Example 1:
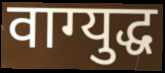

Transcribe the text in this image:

वाग्युद्ध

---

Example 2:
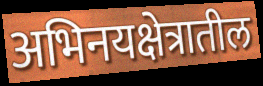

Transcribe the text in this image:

अभिनयक्षेत्रातील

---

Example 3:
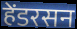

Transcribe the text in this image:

हेंडरसन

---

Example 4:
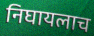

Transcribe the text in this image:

निघायलाच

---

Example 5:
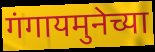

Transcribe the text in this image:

गंगायमुनेच्या